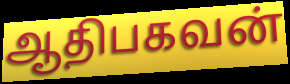
ஆதிபகவன்